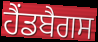
ਹੈਂਡਬੈਗਸ